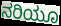
ನರಿಯೂ